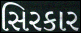
સિરકાર